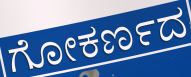
ಗೋಕರ್ಣದ